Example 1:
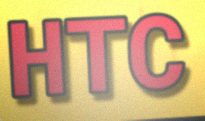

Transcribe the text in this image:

HTC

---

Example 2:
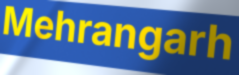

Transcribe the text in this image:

Mehrangarh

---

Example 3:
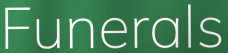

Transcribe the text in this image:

Funerals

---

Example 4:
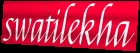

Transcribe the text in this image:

swatilekha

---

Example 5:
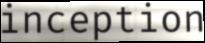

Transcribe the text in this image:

inception